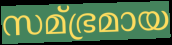
സമ്ഭ്രമായ